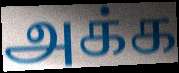
அக்க